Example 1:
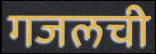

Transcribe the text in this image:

गजलची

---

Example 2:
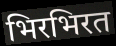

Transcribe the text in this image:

भिरभिरत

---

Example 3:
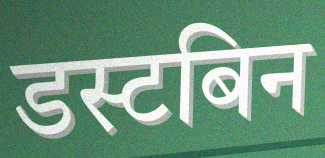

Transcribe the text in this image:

डस्टबिन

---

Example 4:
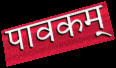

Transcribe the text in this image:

पावकम्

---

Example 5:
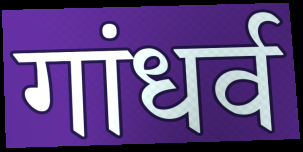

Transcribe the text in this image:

गांधर्व